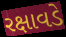
રક્ષાવડે